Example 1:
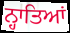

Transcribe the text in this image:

ਨ੍ਹਾਤਿਆਂ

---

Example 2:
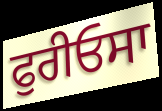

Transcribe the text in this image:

ਫੁਰੀਓਸਾ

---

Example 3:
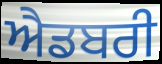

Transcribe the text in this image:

ਐਡਬਰੀ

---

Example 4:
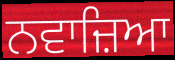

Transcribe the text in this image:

ਨਵਾਜ਼ਿਆ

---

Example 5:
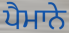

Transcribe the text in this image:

ਪੈਮਾਨੇ